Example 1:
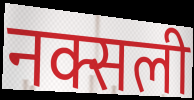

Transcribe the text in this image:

नक्सली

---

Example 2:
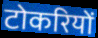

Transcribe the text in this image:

टोकरियों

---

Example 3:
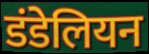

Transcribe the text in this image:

डंडेलियन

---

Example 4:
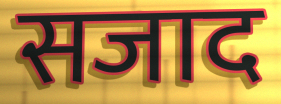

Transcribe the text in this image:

सजाद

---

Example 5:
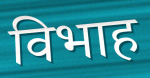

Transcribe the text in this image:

विभाह